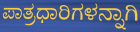
ಪಾತ್ರಧಾರಿಗಳನ್ನಾಗಿ